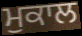
ਮੁਕਾਲ